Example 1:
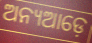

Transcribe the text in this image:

ଅନ୍ୟଆଡ଼େ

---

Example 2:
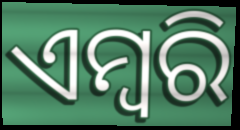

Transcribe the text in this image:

ଏମ୍ବରି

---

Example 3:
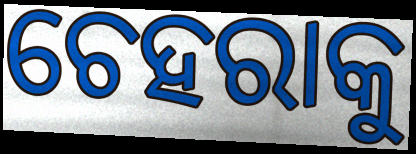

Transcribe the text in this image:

ଚେହରାକୁ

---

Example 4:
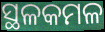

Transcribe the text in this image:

ସ୍ଥଳକମଳ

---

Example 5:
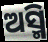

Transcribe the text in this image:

ଅସ୍ମି